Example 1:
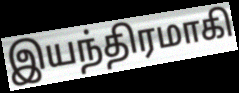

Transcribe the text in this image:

இயந்திரமாகி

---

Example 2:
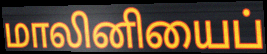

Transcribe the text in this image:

மாலினியைப்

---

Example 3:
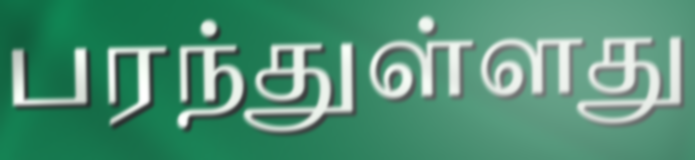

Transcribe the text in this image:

பரந்துள்ளது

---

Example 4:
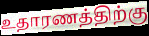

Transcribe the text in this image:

உதாரணத்திற்கு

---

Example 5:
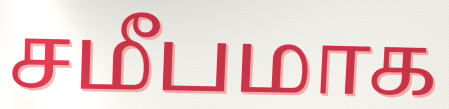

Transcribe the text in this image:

சமீபமாக